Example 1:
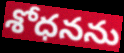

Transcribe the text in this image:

శోధనను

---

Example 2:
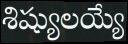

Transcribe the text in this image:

శిష్యులయ్యే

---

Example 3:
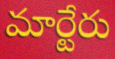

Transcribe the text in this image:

మార్టేరు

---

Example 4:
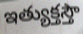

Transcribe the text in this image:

ఇత్యుక్తస్తౌ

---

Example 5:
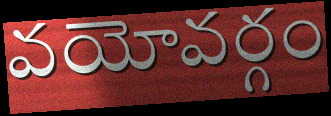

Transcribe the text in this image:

వయోవర్గం